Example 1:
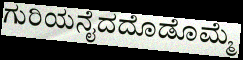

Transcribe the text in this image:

ಗುರಿಯನೈದದೊಡೊಮ್ಮೆ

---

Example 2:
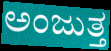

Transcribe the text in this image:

ಅಂಜುತ್ತ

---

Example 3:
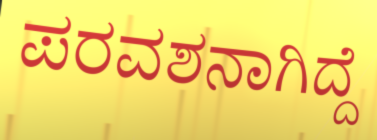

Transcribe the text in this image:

ಪರವಶನಾಗಿದ್ದೆ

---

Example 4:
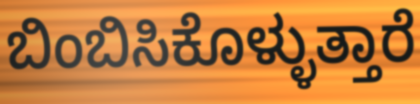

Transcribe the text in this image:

ಬಿಂಬಿಸಿಕೊಳ್ಳುತ್ತಾರೆ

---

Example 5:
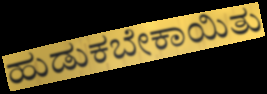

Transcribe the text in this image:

ಹುಡುಕಬೇಕಾಯಿತು